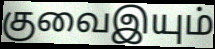
குவைஇயும்